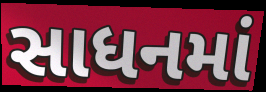
સાધનમાં